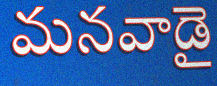
మనవాడై